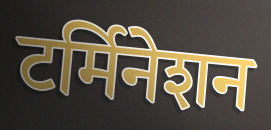
टर्मिनेशन